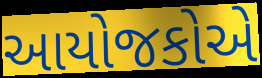
આયોજકોએ